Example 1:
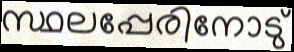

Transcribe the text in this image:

സ്ഥലപ്പേരിനോടു്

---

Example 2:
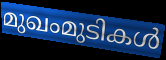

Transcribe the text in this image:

മുഖംമുടികൾ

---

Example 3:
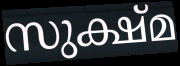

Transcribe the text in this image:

സുക്ഷ്മ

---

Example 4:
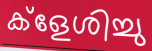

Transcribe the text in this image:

ക്ളേശിച്ചു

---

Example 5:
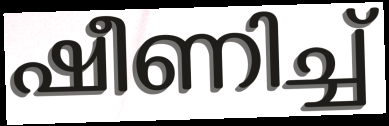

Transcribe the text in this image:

ഷീണിച്ച്